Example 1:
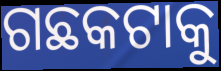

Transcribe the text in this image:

ଗଛକଟାକୁ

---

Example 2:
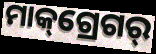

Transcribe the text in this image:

ମାକ୍‌ଗ୍ରେଗର୍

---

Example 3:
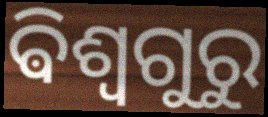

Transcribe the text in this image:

ଵିଶ୍ଵଗୁରୁ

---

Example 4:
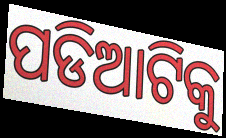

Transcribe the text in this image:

ପଡିଆଟିକୁ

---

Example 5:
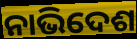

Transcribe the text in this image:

ନାଭିଦେଶ